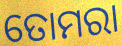
ତୋମରା